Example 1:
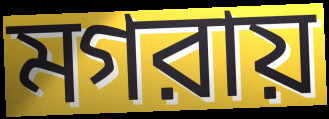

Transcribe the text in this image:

মগরায়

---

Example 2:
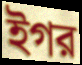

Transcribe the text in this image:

ইগর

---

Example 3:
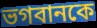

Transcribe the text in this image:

ভগবানকে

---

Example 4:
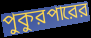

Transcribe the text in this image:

পুকুরপারের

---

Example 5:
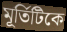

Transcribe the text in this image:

মূর্তিটিকে